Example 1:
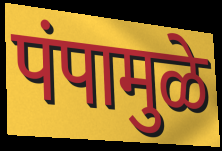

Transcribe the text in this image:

पंपामुळे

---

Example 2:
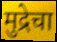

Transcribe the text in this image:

मुद्रेचा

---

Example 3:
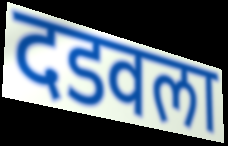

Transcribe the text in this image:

दडवला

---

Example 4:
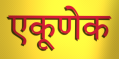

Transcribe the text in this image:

एकूणेक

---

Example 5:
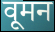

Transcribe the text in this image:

वूमन